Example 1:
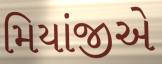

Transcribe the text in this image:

મિયાંજીએ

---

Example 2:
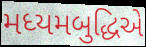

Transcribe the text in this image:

મધ્યમબુદ્ધિએ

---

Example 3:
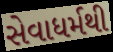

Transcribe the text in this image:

સેવાધર્મથી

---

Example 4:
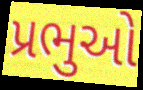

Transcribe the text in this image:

પ્રભુઓ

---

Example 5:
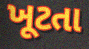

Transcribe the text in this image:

ખૂટતા